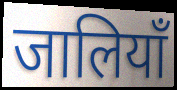
जालियाँ